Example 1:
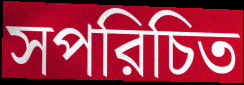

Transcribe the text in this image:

সপরিচিত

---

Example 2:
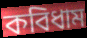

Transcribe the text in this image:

কবিধাম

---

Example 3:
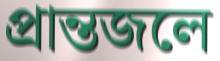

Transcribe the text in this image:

প্রান্তজলে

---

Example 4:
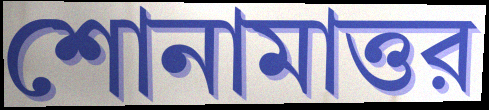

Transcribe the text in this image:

শোনামাত্তর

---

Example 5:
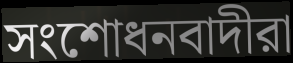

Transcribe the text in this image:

সংশোধনবাদীরা